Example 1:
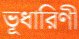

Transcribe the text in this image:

ভূধারিণী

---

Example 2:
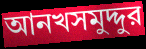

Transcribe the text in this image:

আনখসমুদ্দুর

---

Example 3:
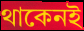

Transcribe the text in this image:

থাকেনই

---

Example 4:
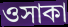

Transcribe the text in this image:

ওসাকা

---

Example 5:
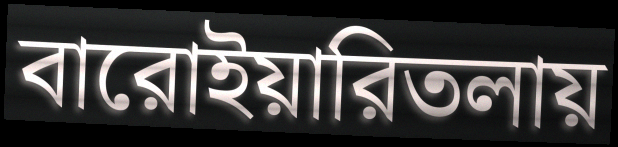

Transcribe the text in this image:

বারোইয়ারিতলায়